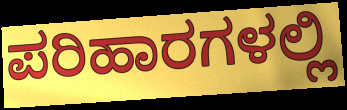
ಪರಿಹಾರಗಳಲ್ಲಿ